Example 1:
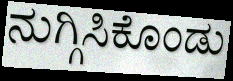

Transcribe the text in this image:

ನುಗ್ಗಿಸಿಕೊಂಡು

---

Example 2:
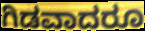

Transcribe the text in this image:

ಗಿಡವಾದರೂ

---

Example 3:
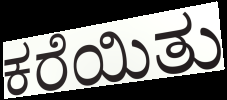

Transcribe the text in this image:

ಕರೆಯಿತು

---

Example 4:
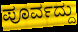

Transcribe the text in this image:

ಪೂರ್ವದ್ದು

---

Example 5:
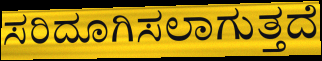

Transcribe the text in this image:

ಸರಿದೂಗಿಸಲಾಗುತ್ತದೆ